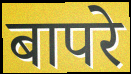
बापरे